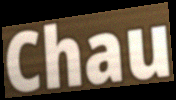
Chau